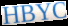
HBYC